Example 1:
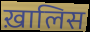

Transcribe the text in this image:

ख़ालिस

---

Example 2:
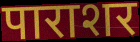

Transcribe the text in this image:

पाराशर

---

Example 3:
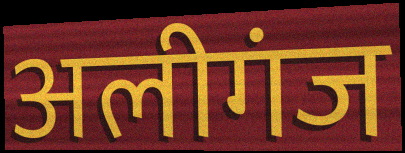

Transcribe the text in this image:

अलीगंज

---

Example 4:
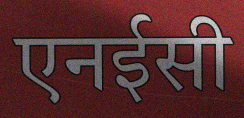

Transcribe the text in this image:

एनईसी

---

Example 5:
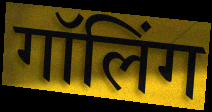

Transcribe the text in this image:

गॉलिंग